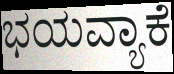
ಭಯವ್ಯಾಕೆ